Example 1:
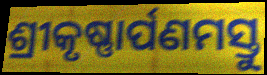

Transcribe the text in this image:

ଶ୍ରୀକୃଷ୍ଣାର୍ପଣମସ୍ତୁ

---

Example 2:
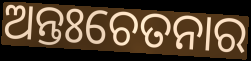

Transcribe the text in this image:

ଅନ୍ତଃଚେତନାର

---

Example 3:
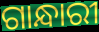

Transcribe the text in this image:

ଗାନ୍ଧାରୀ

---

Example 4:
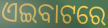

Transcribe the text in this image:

ଏଇବାଟରେ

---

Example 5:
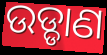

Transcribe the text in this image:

ଉଡ୍ଡାଣ